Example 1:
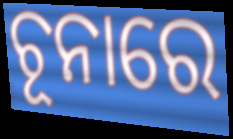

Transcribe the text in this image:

ଚୂନାରେ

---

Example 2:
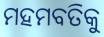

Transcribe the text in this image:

ମହମବତିକୁ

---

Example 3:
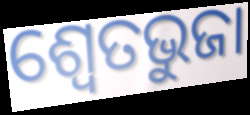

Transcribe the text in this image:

ଶ୍ଵେତଭୁଜା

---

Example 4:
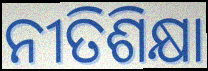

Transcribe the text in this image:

ନୀତିଶିକ୍ଷା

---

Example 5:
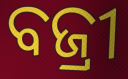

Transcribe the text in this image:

ବଜ୍ରୀ